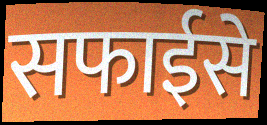
सफाईसे